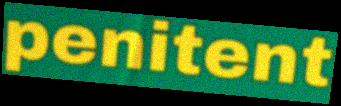
penitent